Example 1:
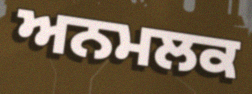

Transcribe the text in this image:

ਅਨਮਲਕ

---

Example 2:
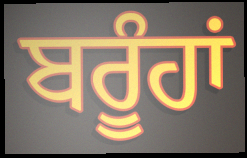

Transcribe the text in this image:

ਬਰੂੰਹਾਂ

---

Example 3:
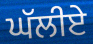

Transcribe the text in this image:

ਘੱਲੀਏ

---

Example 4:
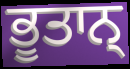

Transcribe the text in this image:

ਭੂਤਾਨ੍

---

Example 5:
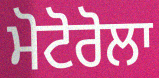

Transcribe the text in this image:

ਮੋਟੋਰੋਲਾ